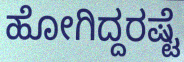
ಹೋಗಿದ್ದರಷ್ಟೆ